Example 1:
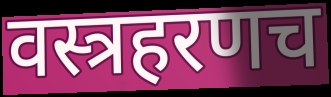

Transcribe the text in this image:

वस्त्रहरणच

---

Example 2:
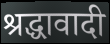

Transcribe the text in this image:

श्रद्धावादी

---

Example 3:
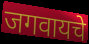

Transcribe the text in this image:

जगवायचे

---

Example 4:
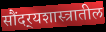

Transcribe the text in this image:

सौंदर्यशास्त्रातील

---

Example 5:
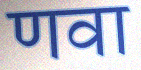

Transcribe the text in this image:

णवा